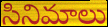
సినిమాలు